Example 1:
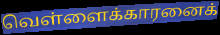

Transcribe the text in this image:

வெள்ளைக்காரனைக்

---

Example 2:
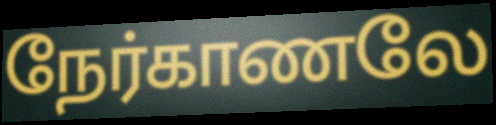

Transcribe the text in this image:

நேர்காணலே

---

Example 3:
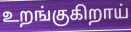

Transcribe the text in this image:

உறங்குகிறாய்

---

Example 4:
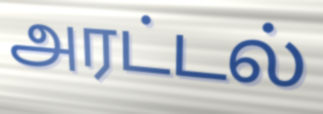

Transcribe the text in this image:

அரட்டல்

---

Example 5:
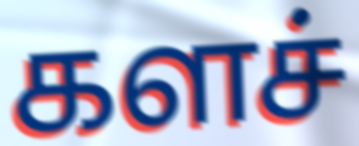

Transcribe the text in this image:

களச்